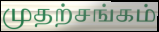
முதற்சங்கம்